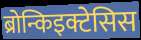
ब्रोन्किइक्टेसिस